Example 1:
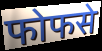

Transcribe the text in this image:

फोफसे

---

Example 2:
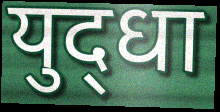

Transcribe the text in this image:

युद्धा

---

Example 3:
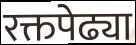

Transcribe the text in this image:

रक्तपेढ्या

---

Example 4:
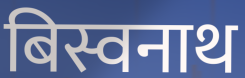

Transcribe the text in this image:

बिस्वनाथ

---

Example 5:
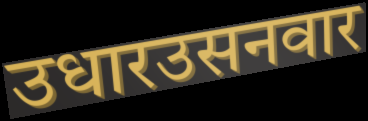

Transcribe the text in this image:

उधारउसनवार